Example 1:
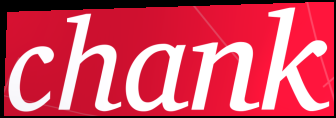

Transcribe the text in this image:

chank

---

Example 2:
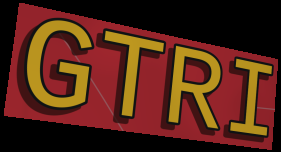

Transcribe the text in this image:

GTRI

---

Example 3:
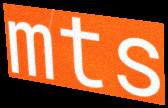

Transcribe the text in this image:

mts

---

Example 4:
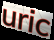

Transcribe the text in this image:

uric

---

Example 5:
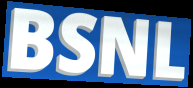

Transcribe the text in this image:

BSNL